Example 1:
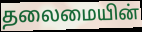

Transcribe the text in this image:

தலைமையின்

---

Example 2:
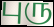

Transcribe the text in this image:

புரு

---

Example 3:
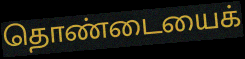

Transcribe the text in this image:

தொண்டையைக்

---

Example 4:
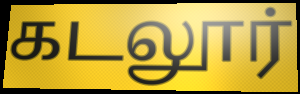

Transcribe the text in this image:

கடலூர்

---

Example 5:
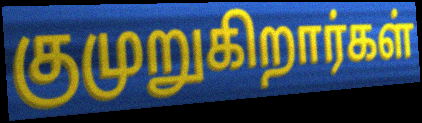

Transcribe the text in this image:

குமுறுகிறார்கள்